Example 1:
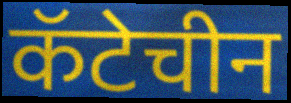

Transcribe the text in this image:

कॅटेचीन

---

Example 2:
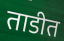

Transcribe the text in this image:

ताडीत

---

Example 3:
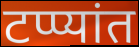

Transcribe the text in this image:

टप्प्यांत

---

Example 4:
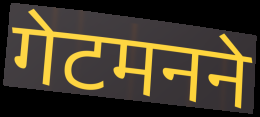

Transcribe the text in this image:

गेटमनने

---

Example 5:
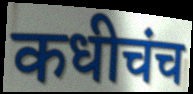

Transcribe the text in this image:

कधीचंच